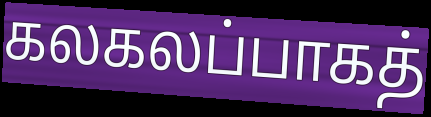
கலகலப்பாகத்